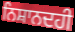
ਨਿਸ਼ਾਨਦਹੀ